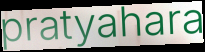
pratyahara